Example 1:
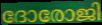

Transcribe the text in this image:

ദോരോജി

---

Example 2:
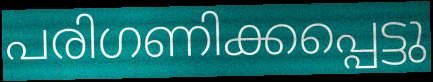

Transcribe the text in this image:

പരിഗണിക്കപ്പെട്ടു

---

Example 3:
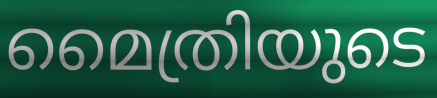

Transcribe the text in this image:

മൈത്രിയുടെ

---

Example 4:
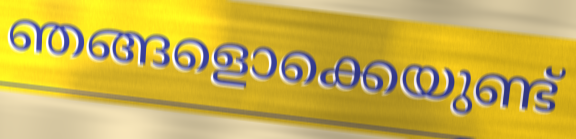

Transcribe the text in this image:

ഞങ്ങളൊക്കെയുണ്ട്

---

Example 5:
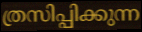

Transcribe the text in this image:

ത്രസിപ്പിക്കുന്ന